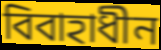
বিবাহাধীন